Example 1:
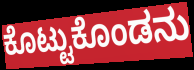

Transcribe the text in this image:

ಕೊಟ್ಟುಕೊಂಡನು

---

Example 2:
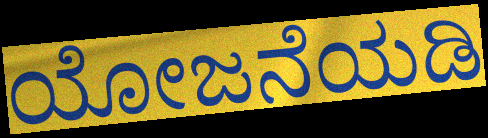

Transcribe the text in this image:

ಯೋಜನೆಯಡಿ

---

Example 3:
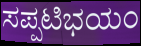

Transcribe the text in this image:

ಸಪ್ಪಟಿಭಯಂ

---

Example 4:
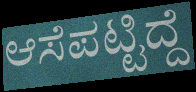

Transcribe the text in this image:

ಆಸೆಪಟ್ಟಿದ್ದೆ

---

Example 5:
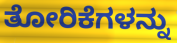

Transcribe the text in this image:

ತೋರಿಕೆಗಳನ್ನು